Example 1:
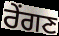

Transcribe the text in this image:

ਰੇਂਗਣ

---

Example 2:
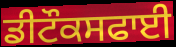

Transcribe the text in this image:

ਡੀਟੌਕਸਫਾਈ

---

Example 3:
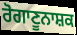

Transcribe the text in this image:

ਰੋਗਾਣੂਨਾਸ਼ਕ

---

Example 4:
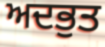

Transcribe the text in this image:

ਅਦਭੁਤ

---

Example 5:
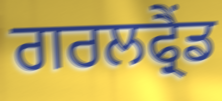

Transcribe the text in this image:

ਗਰਲਫ੍ਰੈਂਡ